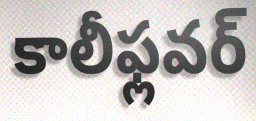
కాలీఫ్లవర్